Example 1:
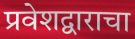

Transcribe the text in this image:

प्रवेशद्वाराचा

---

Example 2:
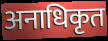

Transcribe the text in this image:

अनाधिकृत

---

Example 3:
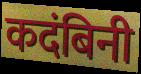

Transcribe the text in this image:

कदंबिनी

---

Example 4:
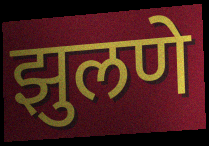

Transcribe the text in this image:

झुलणे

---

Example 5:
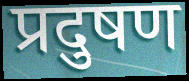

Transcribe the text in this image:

प्रदुषण